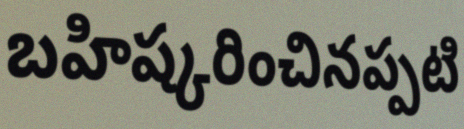
బహిష్కరించినప్పటి